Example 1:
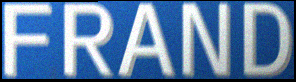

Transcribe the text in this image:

FRAND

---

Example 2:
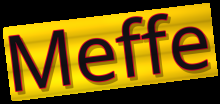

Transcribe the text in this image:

Meffe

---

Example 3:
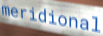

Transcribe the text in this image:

meridional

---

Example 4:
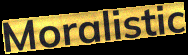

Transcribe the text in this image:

Moralistic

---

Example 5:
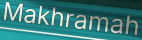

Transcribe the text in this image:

Makhramah